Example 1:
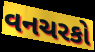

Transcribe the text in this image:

વનચરકો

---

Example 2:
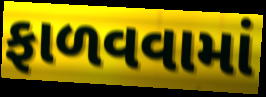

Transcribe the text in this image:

ફાળવવામાં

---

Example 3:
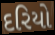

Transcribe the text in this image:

દરિયો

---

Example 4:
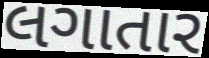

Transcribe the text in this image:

લગાતાર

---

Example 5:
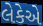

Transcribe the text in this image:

લેકેએ